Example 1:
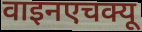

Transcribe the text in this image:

वाइनएचक्यू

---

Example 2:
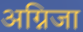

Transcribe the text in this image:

अग्निजा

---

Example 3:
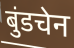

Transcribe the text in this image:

बुंडचेन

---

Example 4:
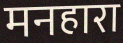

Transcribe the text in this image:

मनहारा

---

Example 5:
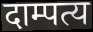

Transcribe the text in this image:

दाम्पत्य